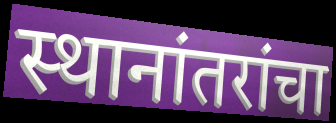
स्थानांतरांचा